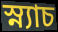
স্ন্যাচ